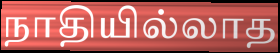
நாதியில்லாத